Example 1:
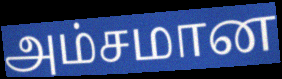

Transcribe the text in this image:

அம்சமான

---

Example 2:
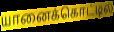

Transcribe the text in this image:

யானைக்கொட்டில்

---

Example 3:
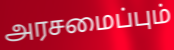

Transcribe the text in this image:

அரசமைப்பும்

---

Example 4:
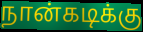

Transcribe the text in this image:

நான்கடிக்கு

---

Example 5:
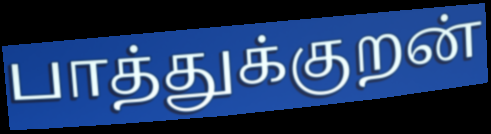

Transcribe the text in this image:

பாத்துக்குறன்